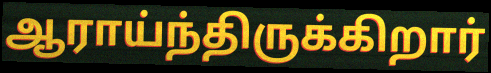
ஆராய்ந்திருக்கிறார்